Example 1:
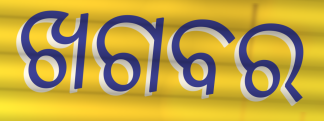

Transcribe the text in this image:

ଖଗବର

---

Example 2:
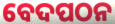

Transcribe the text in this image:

ବେଦପଠନ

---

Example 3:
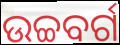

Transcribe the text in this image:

ଉଚ୍ଚବର୍ଗ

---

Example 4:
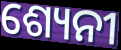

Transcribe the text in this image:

ଶ୍ୟେନୀ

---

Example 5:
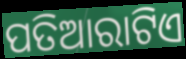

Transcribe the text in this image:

ପତିଆରାଟିଏ